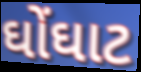
ઘોંઘાટ